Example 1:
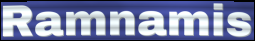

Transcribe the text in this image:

Ramnamis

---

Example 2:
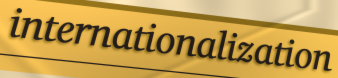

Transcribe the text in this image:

internationalization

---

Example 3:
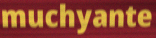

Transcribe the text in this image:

muchyante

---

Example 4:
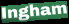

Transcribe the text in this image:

Ingham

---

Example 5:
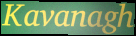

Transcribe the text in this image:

Kavanagh